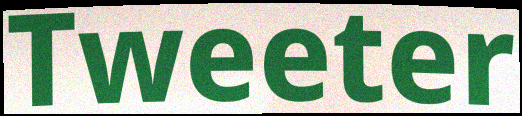
Tweeter